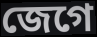
জেগে